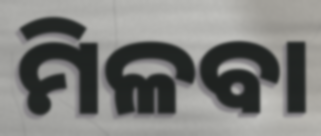
ମିଳବା